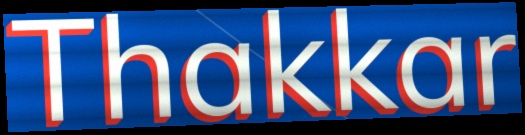
Thakkar